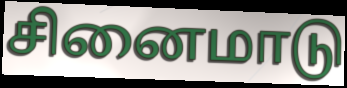
சினைமாடு